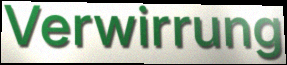
Verwirrung